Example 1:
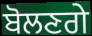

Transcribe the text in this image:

ਬੋਲਣਗੇ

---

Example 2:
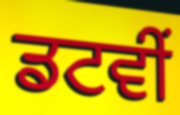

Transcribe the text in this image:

ਡਟਵੀਂ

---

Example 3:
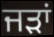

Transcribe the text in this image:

ਜੜਾਂ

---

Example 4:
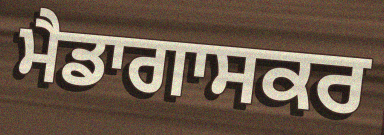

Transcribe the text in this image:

ਮੈਡਾਗਾਸਕਰ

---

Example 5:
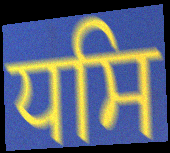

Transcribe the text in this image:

ਧਸਿ